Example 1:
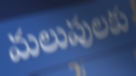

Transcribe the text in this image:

మలుపులకు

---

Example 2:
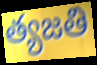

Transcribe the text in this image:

త్యజతి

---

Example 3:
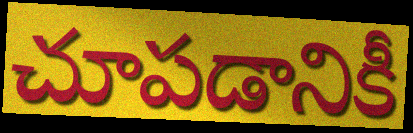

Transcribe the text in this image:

చూపడానికీ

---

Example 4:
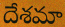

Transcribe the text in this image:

దేశమా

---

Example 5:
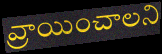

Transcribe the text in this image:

వ్రాయించాలని